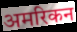
अमरिकन